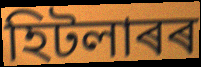
হিটলাৰৰ